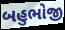
બહુભોજી